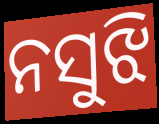
ନସୁଝି